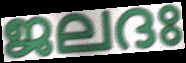
ജലദഃ